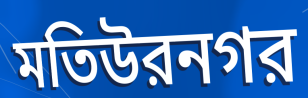
মতিউরনগর